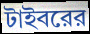
টাইবরের